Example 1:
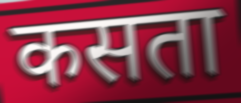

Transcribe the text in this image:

कसता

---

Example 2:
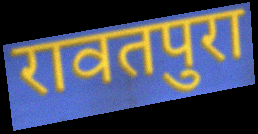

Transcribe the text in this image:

रावतपुरा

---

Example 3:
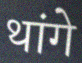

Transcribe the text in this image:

थांगे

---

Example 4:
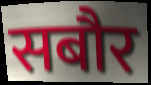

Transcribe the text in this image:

सबौर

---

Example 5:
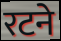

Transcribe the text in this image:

रटने